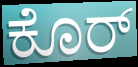
ಕೊರ್